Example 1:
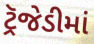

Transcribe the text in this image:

ટ્રૅજેડીમાં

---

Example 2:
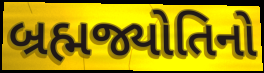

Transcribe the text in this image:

બ્રહ્મજ્યોતિનો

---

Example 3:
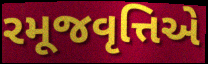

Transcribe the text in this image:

રમૂજવૃત્તિએ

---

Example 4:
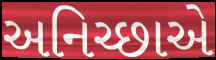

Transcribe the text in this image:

અનિચ્છાએ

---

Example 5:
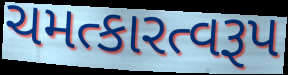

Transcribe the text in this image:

ચમત્કારત્વરૂપ